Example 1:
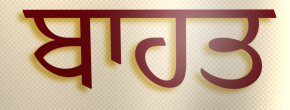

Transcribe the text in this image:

ਬਾਹਤ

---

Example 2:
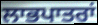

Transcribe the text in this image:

ਲਾਭਪਾਤਰਾਂ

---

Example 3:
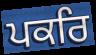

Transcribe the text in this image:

ਪਕਰਿ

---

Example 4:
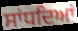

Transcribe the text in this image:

ਸਾਂਧਦਿਆਂ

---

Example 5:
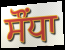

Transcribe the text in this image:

ਸੌਂਧਾ